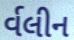
ર્વલીન